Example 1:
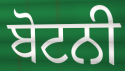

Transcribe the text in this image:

ਬੋਟਨੀ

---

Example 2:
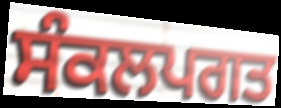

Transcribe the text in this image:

ਸੰਕਲਪਗਤ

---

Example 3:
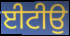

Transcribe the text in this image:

ਈਟੀਉ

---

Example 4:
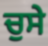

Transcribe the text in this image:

ਚੁਸੇ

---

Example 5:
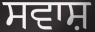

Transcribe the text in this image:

ਸਵਾਸ਼